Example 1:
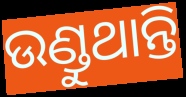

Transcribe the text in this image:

ଉଣ୍ଡୁଥାନ୍ତି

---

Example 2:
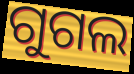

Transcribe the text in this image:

ଗୁଗଲ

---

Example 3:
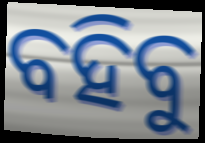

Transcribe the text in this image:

ବହିବୁ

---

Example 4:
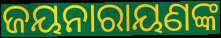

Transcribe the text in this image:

ଜୟନାରାୟଣଙ୍କ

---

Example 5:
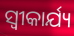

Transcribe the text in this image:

ସ୍ଵୀକାର୍ଯ୍ୟ